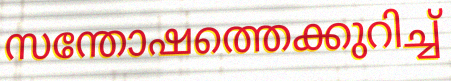
സന്തോഷത്തെക്കുറിച്ച്